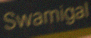
Swamigal